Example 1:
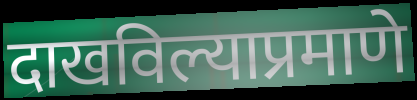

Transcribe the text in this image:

दाखविल्याप्रमाणे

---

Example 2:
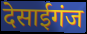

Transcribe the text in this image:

देसाईगंज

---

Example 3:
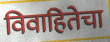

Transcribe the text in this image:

विवाहितेचा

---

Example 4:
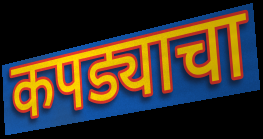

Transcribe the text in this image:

कपड्याचा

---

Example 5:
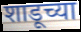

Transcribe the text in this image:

शाडूच्या